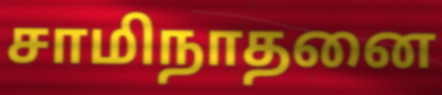
சாமிநாதனை